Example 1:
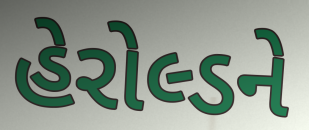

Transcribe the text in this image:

હેરોલ્ડને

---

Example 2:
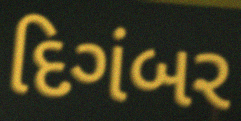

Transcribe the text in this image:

દિગંબર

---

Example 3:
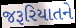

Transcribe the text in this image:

જરૂરિયાતને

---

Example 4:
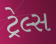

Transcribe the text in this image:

ટ્રેલ્સ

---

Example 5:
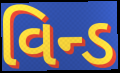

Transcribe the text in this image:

વિન્ડ